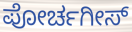
ಪೋರ್ಚಗೀಸ್